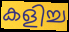
കളിച്ച